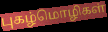
புகழ்மொழிகள்